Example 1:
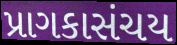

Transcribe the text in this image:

પ્રાગકાસંચય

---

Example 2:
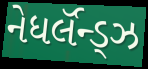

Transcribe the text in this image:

નેધર્લૅન્ડ્ઝ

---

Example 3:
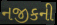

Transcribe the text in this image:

નજીકની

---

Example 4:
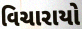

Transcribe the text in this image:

વિચારાયો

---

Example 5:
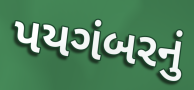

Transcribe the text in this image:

પયગંબરનું